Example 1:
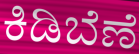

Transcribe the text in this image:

ಕಿಡಿಬೆಣೆ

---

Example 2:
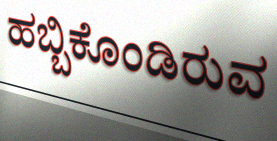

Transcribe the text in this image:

ಹಬ್ಬಿಕೊಂಡಿರುವ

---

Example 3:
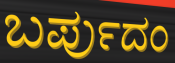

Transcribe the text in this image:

ಬರ್ಪುದಂ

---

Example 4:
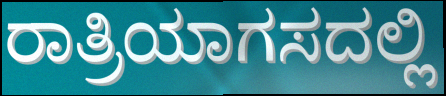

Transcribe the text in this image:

ರಾತ್ರಿಯಾಗಸದಲ್ಲಿ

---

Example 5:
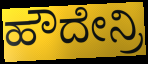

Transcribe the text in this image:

ಹೌದೇನ್ರಿ